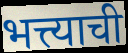
भत्त्याची